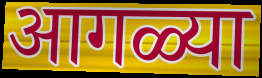
आगळ्या